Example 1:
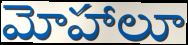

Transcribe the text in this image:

మోహాలూ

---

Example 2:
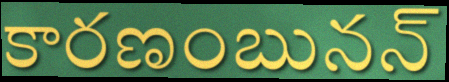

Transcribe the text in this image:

కారణంబునన్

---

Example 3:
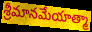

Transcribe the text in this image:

శ్రీమానమేయాత్మా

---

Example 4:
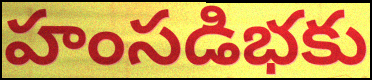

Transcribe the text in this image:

హంసడిభకు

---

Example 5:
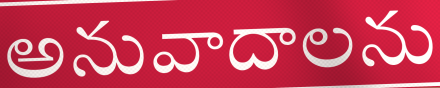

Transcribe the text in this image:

అనువాదాలను